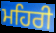
ਮਹਿਰੀ